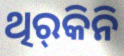
ଥିର୍‍କିନି